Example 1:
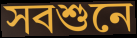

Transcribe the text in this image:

সবশুনে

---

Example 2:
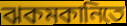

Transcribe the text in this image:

ঝকমকানিতে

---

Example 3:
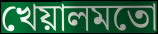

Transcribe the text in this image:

খেয়ালমতো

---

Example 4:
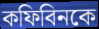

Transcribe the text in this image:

কফিবিনকে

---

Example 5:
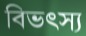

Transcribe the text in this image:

বিভৎস্য